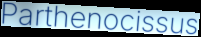
Parthenocissus